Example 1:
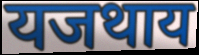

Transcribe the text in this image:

यजथाय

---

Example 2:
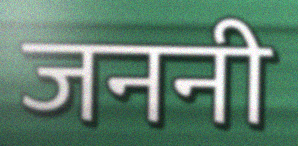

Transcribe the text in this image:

जननी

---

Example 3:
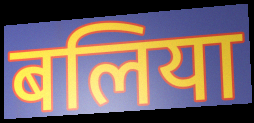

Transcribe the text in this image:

बलिया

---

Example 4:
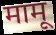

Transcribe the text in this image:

मामू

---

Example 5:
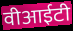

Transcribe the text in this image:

वीआईटी